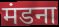
मंडना